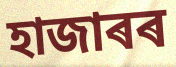
হাজাৰৰ